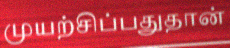
முயற்சிப்பதுதான்